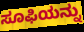
ಸೂಫಿಯನ್ನು